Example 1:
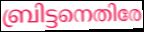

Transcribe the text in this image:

ബ്രിട്ടനെതിരേ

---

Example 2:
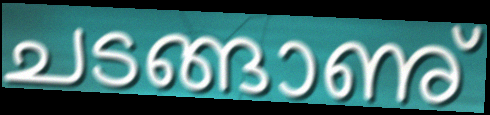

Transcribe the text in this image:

ചടങ്ങാണു്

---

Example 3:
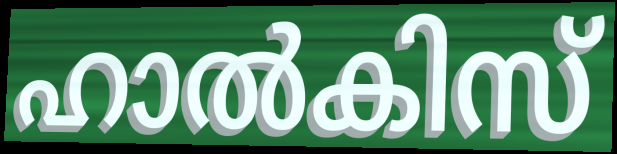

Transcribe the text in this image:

ഹാൽകിസ്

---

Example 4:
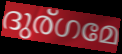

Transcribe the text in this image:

ദുര്ഗമേ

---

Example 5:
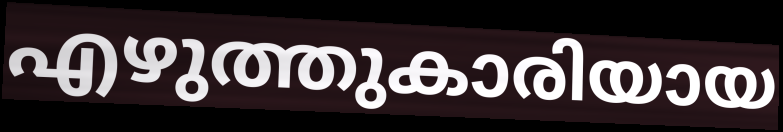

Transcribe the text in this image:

എഴുത്തുകാരിയായ